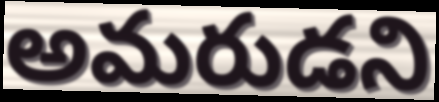
అమరుడని